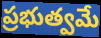
ప్రభుత్వమే